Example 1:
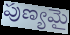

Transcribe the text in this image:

పుణ్యమై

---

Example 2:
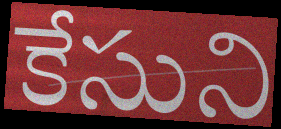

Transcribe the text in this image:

కేసుని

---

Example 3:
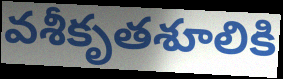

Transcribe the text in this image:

వశీకృతశూలికి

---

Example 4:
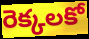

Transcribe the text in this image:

రెక్కలకో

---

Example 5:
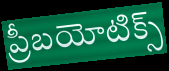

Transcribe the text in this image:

ప్రీబయోటిక్స్